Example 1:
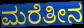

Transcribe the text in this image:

ಮರೆತೀನ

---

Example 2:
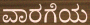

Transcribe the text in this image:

ವಾರಗೆಯ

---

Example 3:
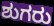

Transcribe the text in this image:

ಶುಗರು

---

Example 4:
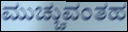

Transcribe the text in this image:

ಮುಚ್ಚುವಂತಹ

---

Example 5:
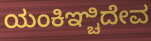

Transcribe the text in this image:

ಯಂಕಿಞ್ಚಿದೇವ